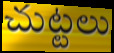
చుట్టలు